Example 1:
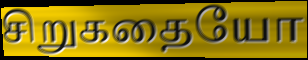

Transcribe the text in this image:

சிறுகதையோ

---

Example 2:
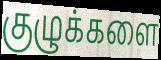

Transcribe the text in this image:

குழுக்களை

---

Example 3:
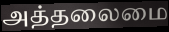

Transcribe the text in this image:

அத்தலைமை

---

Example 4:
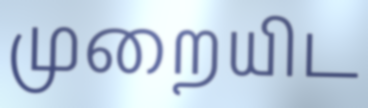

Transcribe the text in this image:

முறையிட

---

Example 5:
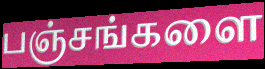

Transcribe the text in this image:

பஞ்சங்களை